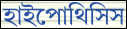
হাইপোথিসিস